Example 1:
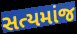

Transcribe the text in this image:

સત્યમાંજ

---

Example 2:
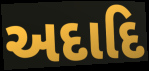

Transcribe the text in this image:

અદાદિ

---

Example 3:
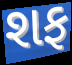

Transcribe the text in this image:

શફ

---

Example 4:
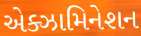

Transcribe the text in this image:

એક્ઝામિનેશન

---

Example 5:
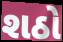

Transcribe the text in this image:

શઠો